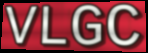
VLGC